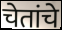
चेतांचे